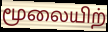
மூலையிற்